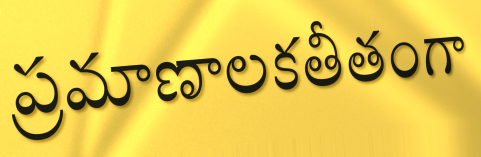
ప్రమాణాలకతీతంగా